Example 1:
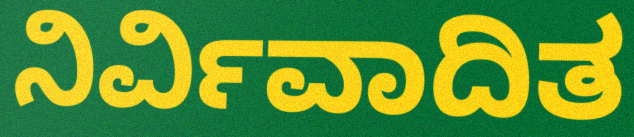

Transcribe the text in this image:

ನಿರ್ವಿವಾದಿತ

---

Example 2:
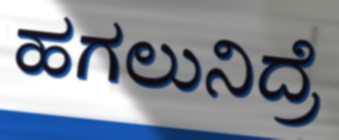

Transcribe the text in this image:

ಹಗಲುನಿದ್ರೆ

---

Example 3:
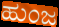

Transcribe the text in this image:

ಹುಂಜ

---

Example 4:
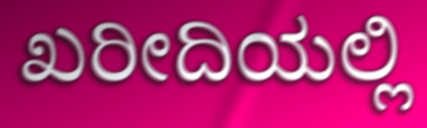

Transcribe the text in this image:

ಖರೀದಿಯಲ್ಲಿ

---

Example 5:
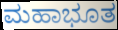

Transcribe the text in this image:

ಮಹಾಭೂತ